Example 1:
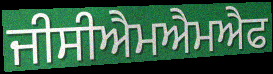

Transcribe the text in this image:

ਜੀਸੀਐਮਐਮਐਫ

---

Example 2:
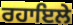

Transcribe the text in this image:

ਰਹਾਇਲੇ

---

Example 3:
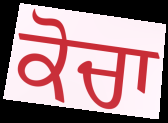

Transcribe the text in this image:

ਕੋਚਾ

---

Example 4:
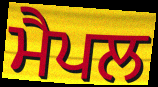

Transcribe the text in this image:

ਮੈਪਲ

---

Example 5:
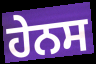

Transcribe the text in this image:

ਹੇਨਸ